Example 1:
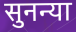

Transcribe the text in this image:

सुनन्या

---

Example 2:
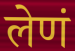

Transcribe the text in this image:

लेणं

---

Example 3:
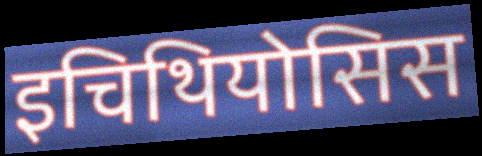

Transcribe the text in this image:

इचिथियोसिस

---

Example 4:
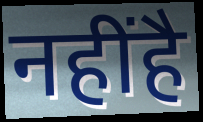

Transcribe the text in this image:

नहींहै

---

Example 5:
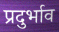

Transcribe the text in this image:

प्रदुर्भाव